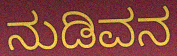
ನುಡಿವನ